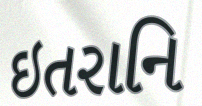
ઇતરાનિ